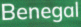
Benegal